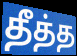
தீத்த